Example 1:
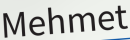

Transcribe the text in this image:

Mehmet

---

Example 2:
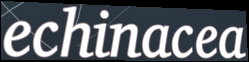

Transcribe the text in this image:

echinacea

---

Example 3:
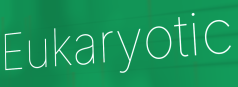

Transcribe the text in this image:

Eukaryotic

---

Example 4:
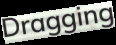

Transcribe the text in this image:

Dragging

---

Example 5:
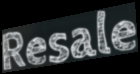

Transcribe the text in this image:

Resale